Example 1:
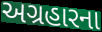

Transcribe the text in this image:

અગ્રહારના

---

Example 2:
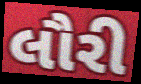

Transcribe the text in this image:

લૌરી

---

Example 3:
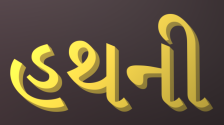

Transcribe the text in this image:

હથની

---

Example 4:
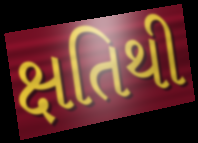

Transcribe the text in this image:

ક્ષતિથી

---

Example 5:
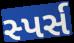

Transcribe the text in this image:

સ્પર્સ